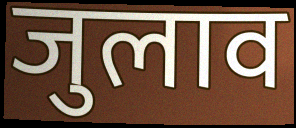
जुलाव